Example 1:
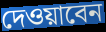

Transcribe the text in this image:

দেওয়াবেন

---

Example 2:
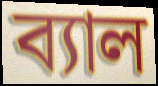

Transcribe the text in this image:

ব্যাল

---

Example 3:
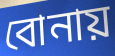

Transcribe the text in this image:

বোনায়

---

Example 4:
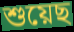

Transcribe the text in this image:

শুয়েছ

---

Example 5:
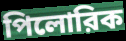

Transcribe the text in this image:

পিলোরিক